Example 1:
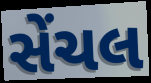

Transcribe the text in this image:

સેંચલ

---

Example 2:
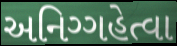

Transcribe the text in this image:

અનિગ્ગહેત્વા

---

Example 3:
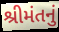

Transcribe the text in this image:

શ્રીમંતનું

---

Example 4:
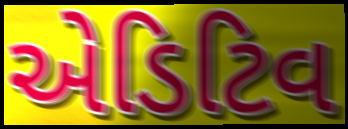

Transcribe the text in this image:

એડિટિવ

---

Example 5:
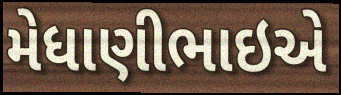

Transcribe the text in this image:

મેધાણીભાઇએ